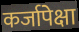
कर्जापेक्षा